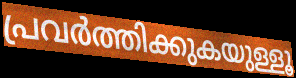
പ്രവർത്തിക്കുകയുള്ളൂ